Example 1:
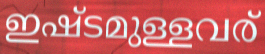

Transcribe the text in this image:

ഇഷ്ടമുള്ളവര്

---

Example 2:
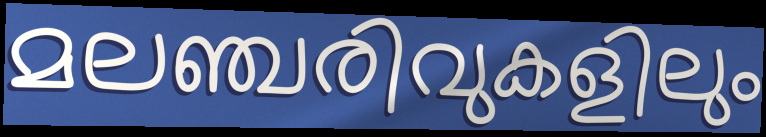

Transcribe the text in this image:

മലഞ്ചരിവുകളിലും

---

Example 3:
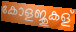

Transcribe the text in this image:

കോളജുകള്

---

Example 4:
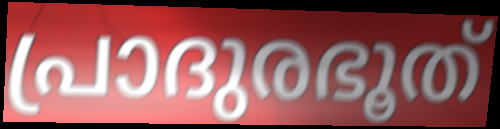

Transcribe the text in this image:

പ്രാദുരഭൂത്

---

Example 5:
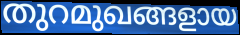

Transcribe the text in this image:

തുറമുഖങ്ങളായ